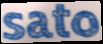
sato